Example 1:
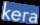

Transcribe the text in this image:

kera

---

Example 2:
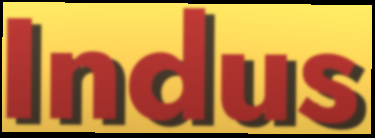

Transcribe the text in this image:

Indus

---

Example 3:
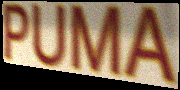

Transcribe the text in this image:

PUMA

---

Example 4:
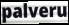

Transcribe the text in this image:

palveru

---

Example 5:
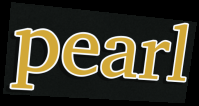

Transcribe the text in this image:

pearl